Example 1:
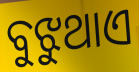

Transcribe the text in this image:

ବୁଝୁଥାଏ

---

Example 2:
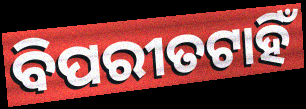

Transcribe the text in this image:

ବିପରୀତଟାହିଁ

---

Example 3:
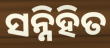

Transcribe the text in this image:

ସନ୍ନିହିତ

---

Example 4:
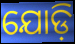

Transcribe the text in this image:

ଯୋଡ଼ି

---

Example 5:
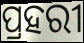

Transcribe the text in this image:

ପ୍ରହରୀ